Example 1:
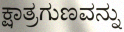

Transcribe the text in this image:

ಕ್ಷಾತ್ರಗುಣವನ್ನು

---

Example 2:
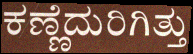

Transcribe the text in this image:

ಕಣ್ಣೆದುರಿಗಿತ್ತು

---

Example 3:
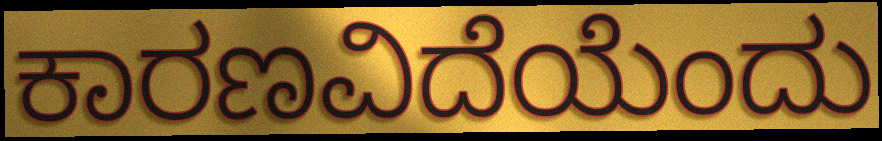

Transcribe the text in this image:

ಕಾರಣವಿದೆಯೆಂದು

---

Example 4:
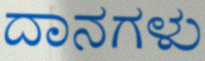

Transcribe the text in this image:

ದಾನಗಳು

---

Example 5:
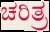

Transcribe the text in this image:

ಚರಿತ್ರ